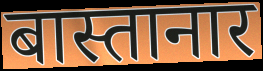
बास्तानार